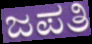
ಜಪತಿ